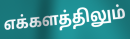
எக்களத்திலும்